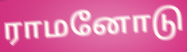
ராமனோடு